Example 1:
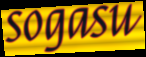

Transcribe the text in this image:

sogasu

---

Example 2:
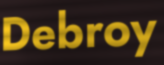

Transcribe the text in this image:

Debroy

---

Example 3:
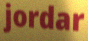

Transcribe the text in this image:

jordar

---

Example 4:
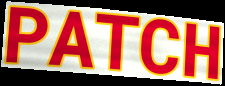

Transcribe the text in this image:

PATCH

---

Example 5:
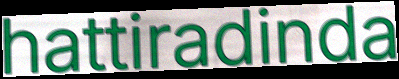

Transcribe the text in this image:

hattiradinda